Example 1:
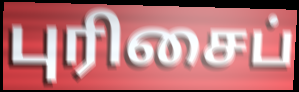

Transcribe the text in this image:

புரிசைப்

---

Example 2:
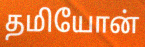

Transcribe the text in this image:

தமியோன்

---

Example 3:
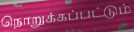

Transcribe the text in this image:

நொறுக்கப்பட்டும்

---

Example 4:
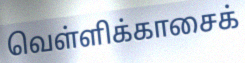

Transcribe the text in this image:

வெள்ளிக்காசைக்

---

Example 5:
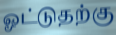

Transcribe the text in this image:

ஓட்டுதற்கு